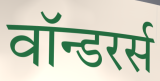
वॉन्डरर्स